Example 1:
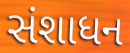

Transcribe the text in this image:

સંશાધન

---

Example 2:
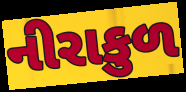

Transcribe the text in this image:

નીરાકુળ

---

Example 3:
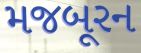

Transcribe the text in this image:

મજબૂરન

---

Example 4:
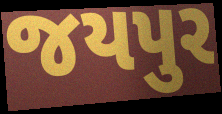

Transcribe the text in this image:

જયપુર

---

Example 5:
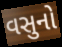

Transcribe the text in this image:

વસુનો